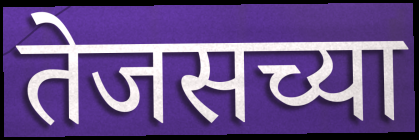
तेजसच्या